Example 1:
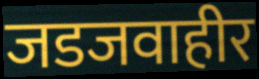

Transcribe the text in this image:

जडजवाहीर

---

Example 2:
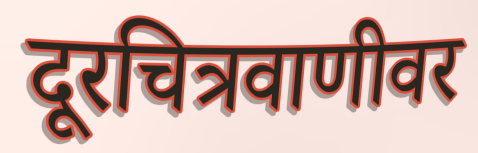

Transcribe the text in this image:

दूरचित्रवाणीवर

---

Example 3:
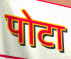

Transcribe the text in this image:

पोटा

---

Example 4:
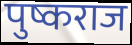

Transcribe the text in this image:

पुष्कराज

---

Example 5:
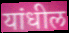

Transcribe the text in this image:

यांधील